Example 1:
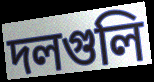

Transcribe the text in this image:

দলগুলি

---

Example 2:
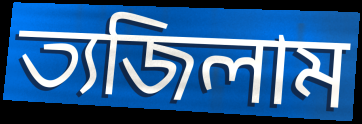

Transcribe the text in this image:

ত্যজিলাম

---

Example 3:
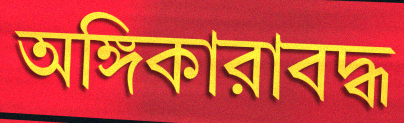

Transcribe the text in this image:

অঙ্গিকারাবদ্ধ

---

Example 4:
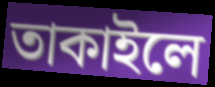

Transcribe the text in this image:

তাকাইলে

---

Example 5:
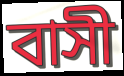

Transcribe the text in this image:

বাসী